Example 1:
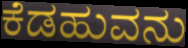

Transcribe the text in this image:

ಕೆಡಹುವನು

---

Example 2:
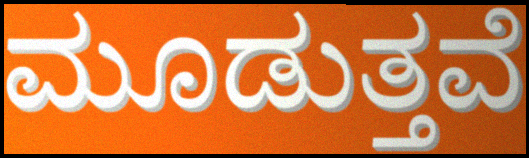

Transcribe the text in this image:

ಮೂಡುತ್ತವೆ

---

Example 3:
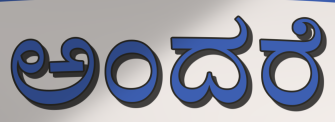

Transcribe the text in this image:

ಅಂದರೆ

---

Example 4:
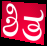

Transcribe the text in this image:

ಶಿತ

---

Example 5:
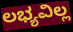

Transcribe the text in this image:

ಲಭ್ಯವಿಲ್ಲ